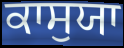
ਕਾਸੁਯਾ